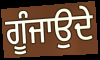
ਗੂੰਜਾਉਦੇ